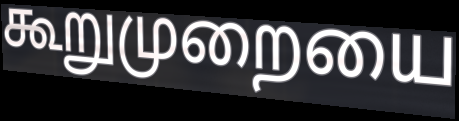
கூறுமுறையை